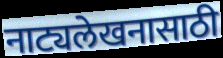
नाट्यलेखनासाठी